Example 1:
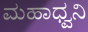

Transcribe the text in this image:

ಮಹಾಧ್ವನಿ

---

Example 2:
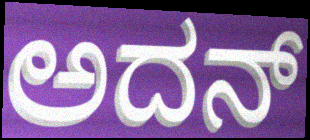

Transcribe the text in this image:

ಅದನ್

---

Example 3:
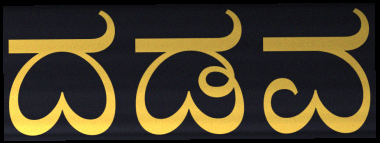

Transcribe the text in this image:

ದಡವ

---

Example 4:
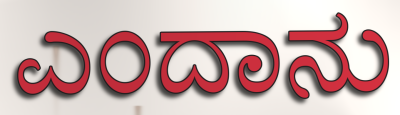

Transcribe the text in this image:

ಎಂದಾನು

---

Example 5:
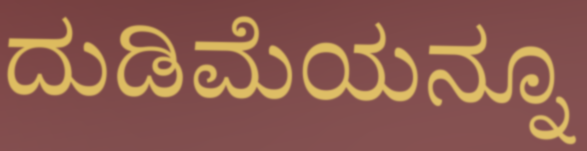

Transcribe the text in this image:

ದುಡಿಮೆಯನ್ನೂ